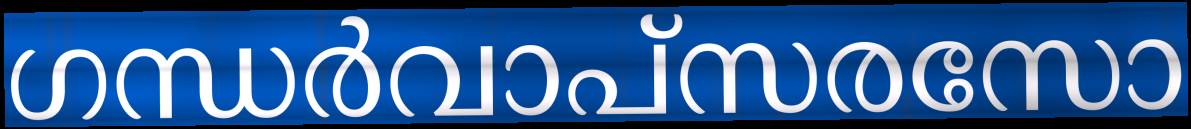
ഗന്ധർവാപ്സരസോ